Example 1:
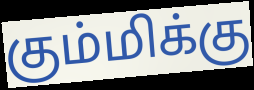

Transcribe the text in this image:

கும்மிக்கு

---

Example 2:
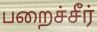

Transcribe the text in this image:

பறைச்சீர்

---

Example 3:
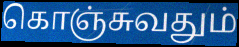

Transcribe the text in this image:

கொஞ்சுவதும்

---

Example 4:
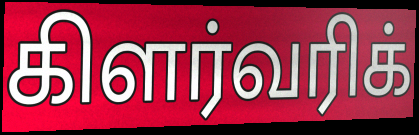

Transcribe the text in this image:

கிளர்வரிக்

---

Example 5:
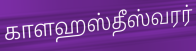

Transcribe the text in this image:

காளஹஸ்தீஸ்வரர்